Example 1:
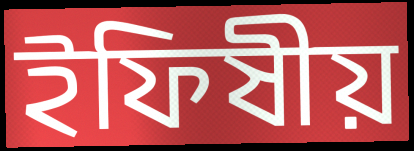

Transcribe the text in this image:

ইফিষীয়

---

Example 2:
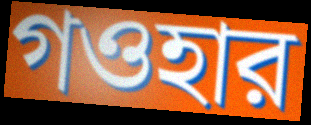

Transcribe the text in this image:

গওহার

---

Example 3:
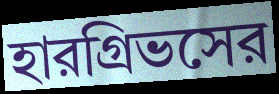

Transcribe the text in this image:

হারগ্রিভসের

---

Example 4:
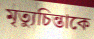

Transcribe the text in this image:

মৃত্যুচিন্তাকে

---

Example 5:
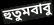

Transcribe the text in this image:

হুতুমবাবু